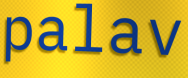
palav